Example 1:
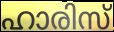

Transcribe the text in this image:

ഹാരിസ്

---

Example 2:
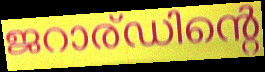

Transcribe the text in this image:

ജറാര്ഡിന്റെ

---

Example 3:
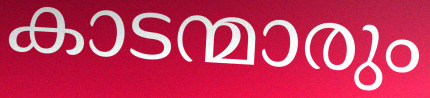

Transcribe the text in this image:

കാടന്മാരും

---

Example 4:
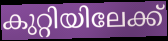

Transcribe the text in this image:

കുറ്റിയിലേക്ക്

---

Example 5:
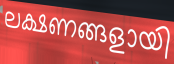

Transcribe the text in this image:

ലക്ഷണങ്ങളായി